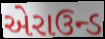
એરાઉન્ડ